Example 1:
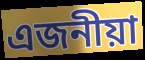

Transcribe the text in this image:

এজনীয়া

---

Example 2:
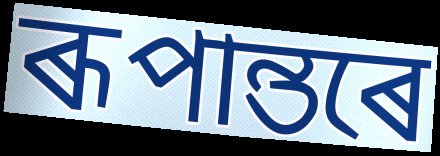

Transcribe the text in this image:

ৰূপান্তৰে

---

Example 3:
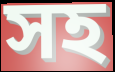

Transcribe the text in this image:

সহ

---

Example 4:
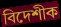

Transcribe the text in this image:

বিদেশীক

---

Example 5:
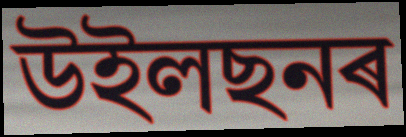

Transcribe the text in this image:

উইলছনৰ